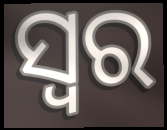
ସ୍ବର